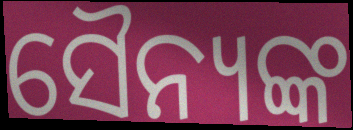
ସୈନ୍ୟଙ୍କ